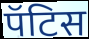
पॅटिस